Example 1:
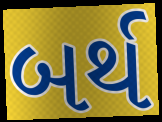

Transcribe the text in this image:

બર્થ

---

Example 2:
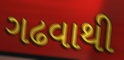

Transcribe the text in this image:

ગઢવાથી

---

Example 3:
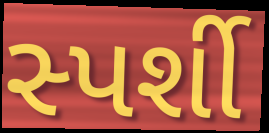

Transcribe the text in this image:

સ્પર્શી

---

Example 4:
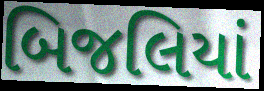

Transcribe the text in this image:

બિજલિયાં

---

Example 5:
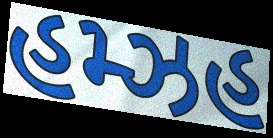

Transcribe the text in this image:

હમ્ઝહ